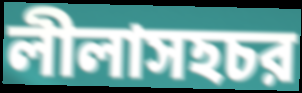
লীলাসহচর